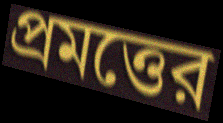
প্রমত্তের